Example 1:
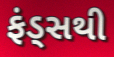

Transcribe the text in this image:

ફંડ્સથી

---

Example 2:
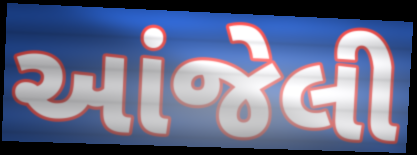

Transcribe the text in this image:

આંજેલી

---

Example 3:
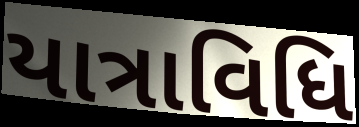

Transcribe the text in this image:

યાત્રાવિધિ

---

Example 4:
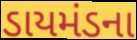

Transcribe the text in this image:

ડાયમંડના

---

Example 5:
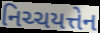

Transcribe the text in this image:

નિચ્ચયત્તેન